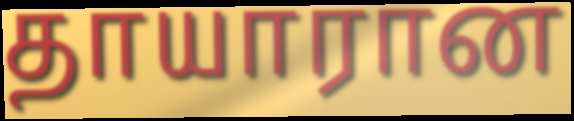
தாயாரான